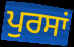
ਪੁਰਸਾਂ